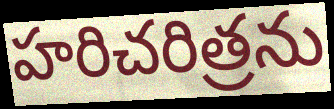
హరిచరిత్రను